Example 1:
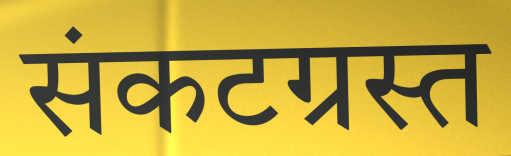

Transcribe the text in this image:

संकटग्रस्‍त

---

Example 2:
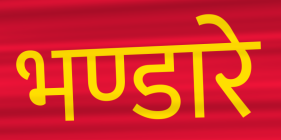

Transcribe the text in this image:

भण्डारे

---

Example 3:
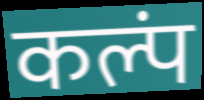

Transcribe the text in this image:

कल्पं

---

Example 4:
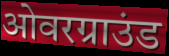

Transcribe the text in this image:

ओवरग्राउंड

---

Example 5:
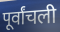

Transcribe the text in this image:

पूर्वांचली